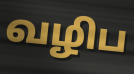
வழிப